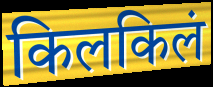
किलकिलं